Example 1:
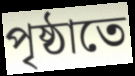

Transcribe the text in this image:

পৃষ্ঠাতে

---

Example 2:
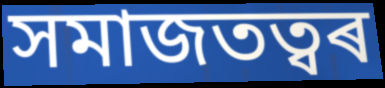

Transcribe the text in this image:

সমাজতত্বৰ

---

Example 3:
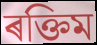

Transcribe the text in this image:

ৰক্তিম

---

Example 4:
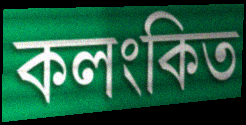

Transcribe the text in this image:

কলংকিত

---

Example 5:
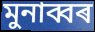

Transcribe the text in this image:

মুনাব্বৰ